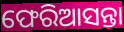
ଫେରିଆସନ୍ତା